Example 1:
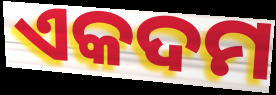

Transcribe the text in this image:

ଏକଦମ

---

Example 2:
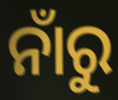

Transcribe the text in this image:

ନାଁରୁ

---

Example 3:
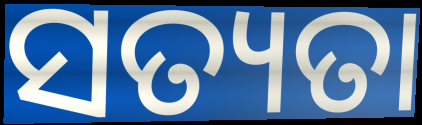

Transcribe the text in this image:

ସତ୍ୟତା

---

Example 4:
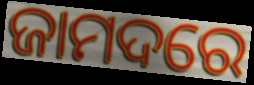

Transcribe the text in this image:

ଜାମଦରେ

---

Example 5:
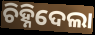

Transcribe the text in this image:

ଚିହ୍ନିଦେଲା